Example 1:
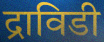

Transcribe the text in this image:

द्राविडी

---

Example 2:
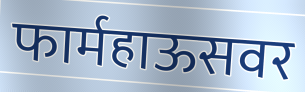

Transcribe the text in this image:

फार्महाऊसवर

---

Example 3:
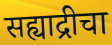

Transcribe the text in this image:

सह्याद्रीचा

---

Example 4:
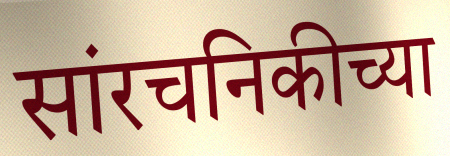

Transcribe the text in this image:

सांरचनिकीच्या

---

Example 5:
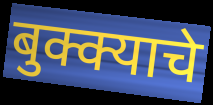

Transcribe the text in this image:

बुक्क्याचे